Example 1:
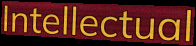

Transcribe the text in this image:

Intellectual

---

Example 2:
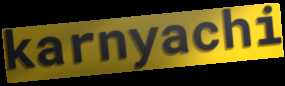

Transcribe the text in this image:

karnyachi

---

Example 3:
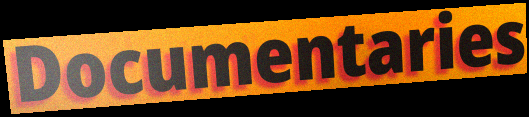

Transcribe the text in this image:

Documentaries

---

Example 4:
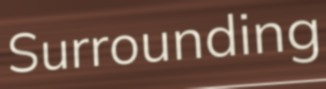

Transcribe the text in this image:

Surrounding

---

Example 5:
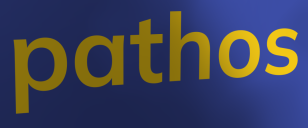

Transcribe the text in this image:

pathos